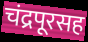
चंद्रपूरसह